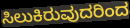
ಸಿಲುಕಿರುವುದರಿಂದ